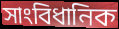
সাংবিধানিক